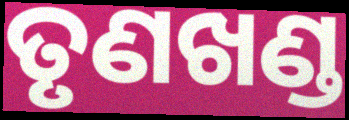
ତୃଣଖଣ୍ଡ